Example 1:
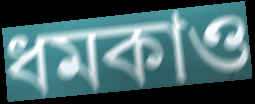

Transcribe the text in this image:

ধমকাও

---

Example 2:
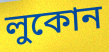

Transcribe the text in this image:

লুকোন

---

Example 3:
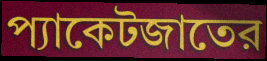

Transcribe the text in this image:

প্যাকেটজাতের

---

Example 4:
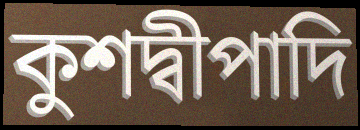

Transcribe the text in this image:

কুশদ্বীপাদি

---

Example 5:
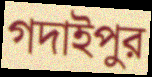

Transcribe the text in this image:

গদাইপুর